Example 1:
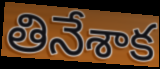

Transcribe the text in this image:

తినేశాక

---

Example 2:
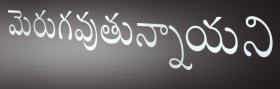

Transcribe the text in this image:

మెరుగవుతున్నాయని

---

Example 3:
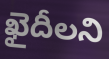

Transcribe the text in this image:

ఖైదీలని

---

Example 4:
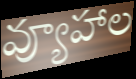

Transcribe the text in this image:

వ్యూహాల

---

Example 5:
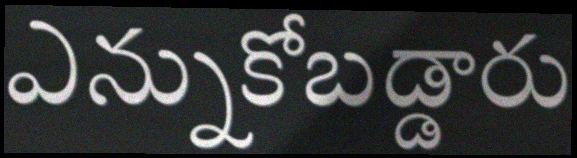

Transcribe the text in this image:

ఎన్నుకోబడ్డారు